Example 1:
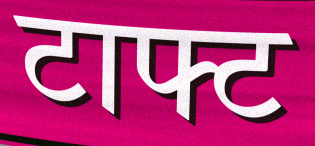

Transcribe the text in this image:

टाफ्ट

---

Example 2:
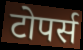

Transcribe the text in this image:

टोपर्स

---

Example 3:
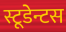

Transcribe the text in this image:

स्टूडेन्टस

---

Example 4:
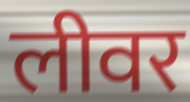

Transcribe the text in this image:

लीवर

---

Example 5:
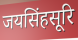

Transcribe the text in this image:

जयसिंहसूरि